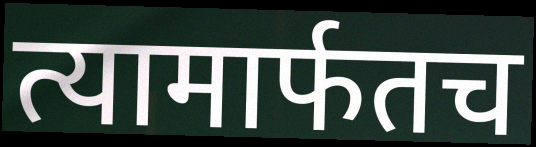
त्यामार्फतच